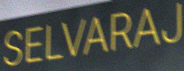
SELVARAJ